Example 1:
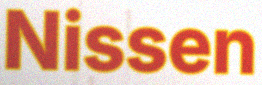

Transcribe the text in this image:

Nissen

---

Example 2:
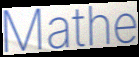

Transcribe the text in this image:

Mathe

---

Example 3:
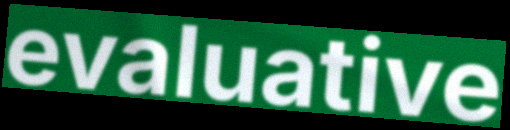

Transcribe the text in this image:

evaluative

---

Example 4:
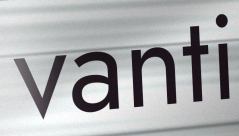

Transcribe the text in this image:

vanti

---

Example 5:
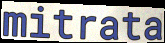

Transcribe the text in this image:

mitrata